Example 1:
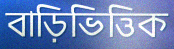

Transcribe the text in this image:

বাড়িভিত্তিক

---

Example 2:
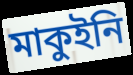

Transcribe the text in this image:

মাকুইনি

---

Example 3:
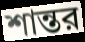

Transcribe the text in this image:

শান্তর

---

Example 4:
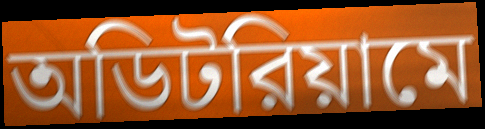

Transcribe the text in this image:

অডিটরিয়ামে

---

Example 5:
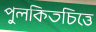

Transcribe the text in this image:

পুলকিতচিত্তে